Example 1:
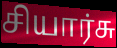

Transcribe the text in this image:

சியார்சு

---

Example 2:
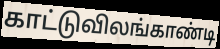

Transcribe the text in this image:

காட்டுவிலங்காண்டி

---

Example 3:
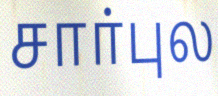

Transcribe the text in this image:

சார்புல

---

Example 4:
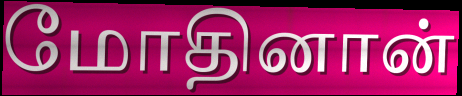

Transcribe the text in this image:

மோதினான்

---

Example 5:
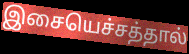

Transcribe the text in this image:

இசையெச்சத்தால்